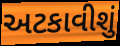
અટકાવીશું